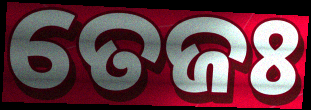
ତେଜଃ